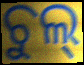
ଚୁଲ୍